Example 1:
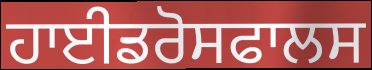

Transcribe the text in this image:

ਹਾਈਡਰੋਸਫਾਲਸ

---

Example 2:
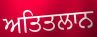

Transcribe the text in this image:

ਅਤਿਤਲਾਨ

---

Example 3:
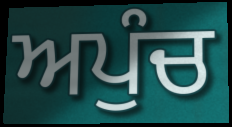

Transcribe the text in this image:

ਅਪੁੰਚ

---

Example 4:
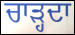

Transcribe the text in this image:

ਚਾੜ੍ਹਦਾ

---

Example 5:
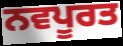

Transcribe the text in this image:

ਨਵਪੂਰਤ